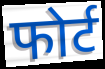
फोर्ट